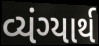
વ્યંગ્યાર્થ